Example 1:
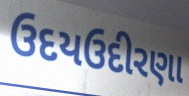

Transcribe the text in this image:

ઉદયઉદીરણા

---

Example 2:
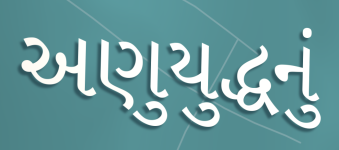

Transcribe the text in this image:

અણુયુદ્ધનું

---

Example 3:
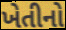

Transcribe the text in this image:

ખેતીનો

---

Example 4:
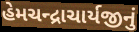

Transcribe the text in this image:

હેમચન્દ્રાચાર્યજીનું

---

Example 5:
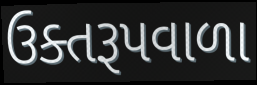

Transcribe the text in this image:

ઉક્તરૂપવાળા